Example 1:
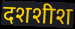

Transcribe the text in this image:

दशशीश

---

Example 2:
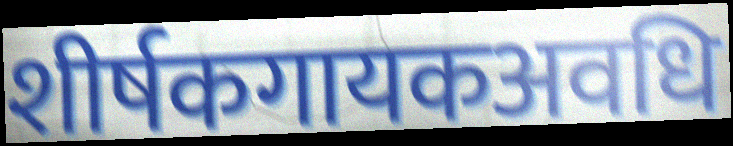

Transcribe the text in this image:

शीर्षकगायकअवधि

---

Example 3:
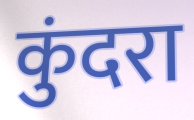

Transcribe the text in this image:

कुंदरा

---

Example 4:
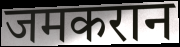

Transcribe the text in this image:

जमकरान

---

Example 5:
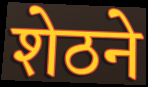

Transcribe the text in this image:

शेठने